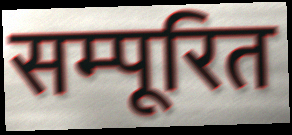
सम्पूरित